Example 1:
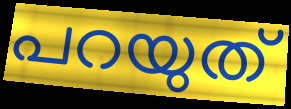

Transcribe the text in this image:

പറയുത്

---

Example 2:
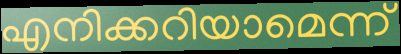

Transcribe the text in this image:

എനിക്കറിയാമെന്ന്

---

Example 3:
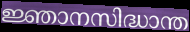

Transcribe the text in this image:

ജ്ഞാനസിദ്ധാന്ത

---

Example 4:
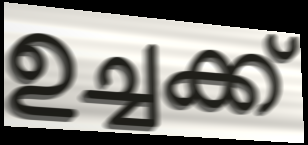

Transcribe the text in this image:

ഉച്ചക്ക്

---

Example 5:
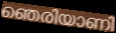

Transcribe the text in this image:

ഞെരിയാണി